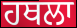
ਹਥਲਾ